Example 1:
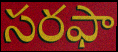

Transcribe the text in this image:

సరఫా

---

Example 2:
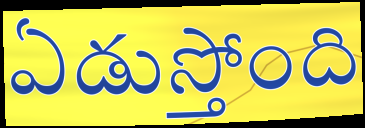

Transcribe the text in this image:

ఏడుస్తోంది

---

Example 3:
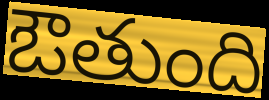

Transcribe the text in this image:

ఔతుంది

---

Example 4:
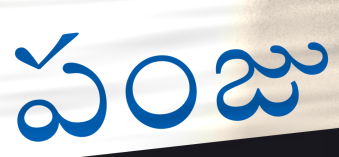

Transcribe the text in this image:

పంజు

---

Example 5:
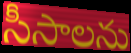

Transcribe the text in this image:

సీసాలను